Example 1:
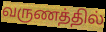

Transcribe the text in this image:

வருணத்தில்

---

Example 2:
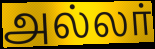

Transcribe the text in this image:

அல்லர்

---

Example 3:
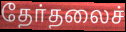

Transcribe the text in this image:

தேர்தலைச்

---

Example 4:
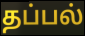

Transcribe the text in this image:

தப்பல்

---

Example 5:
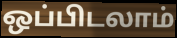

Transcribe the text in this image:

ஒப்பிடலாம்